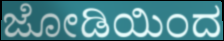
ಜೋಡಿಯಿಂದ